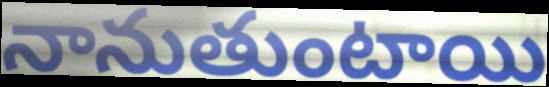
నానుతుంటాయి